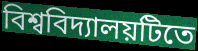
বিশ্ববিদ্যালয়টিতে